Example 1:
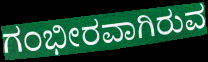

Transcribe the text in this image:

ಗಂಭೀರವಾಗಿರುವ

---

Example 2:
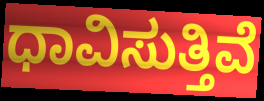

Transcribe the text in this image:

ಧಾವಿಸುತ್ತಿವೆ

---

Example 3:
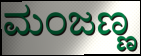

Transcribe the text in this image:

ಮಂಜಣ್ಣ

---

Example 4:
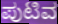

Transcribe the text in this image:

ಪುಟಿವ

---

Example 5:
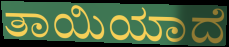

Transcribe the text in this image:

ತಾಯಿಯಾದೆ